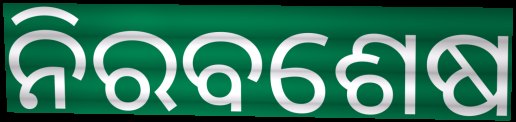
ନିରବଶେଷ